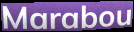
Marabou